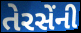
તેરસેંની